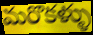
మరొకళ్ళు